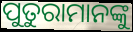
ପୁତୁରାମାନଙ୍କୁ